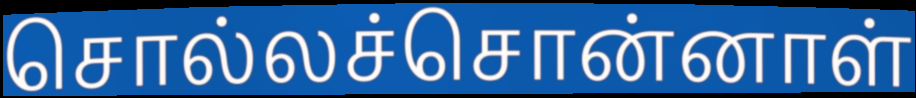
சொல்லச்சொன்னாள்